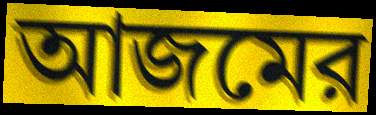
আজমের